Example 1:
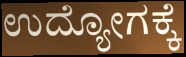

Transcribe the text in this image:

ಉದ್ಯೋಗಕ್ಕೆ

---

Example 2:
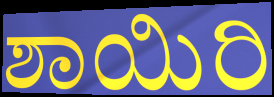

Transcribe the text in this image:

ಶಾಯಿರಿ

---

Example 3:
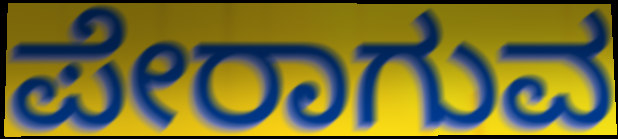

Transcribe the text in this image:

ಪೇರಾಗುವ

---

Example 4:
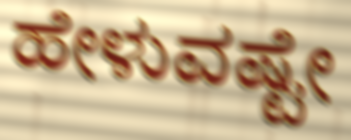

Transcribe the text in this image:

ಹೇಳುವಷ್ಟೇ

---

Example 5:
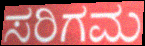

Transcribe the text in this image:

ಸರಿಗಮ